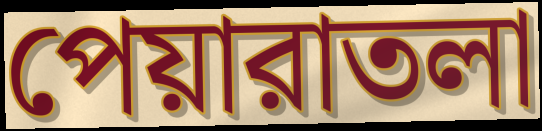
পেয়ারাতলা